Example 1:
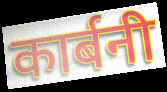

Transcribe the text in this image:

कार्बनी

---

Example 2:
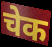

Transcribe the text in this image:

चेक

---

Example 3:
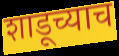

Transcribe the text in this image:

शाडूच्याच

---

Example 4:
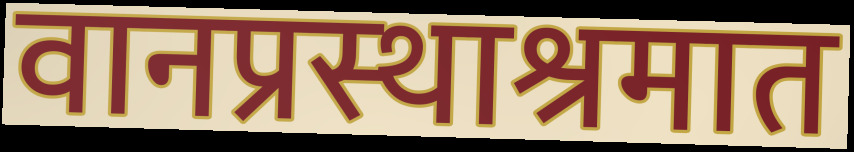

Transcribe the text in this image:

वानप्रस्थाश्रमात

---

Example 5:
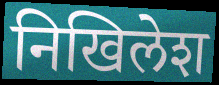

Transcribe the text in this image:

निखिलेश